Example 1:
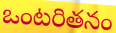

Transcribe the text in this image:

ఒంటరితనం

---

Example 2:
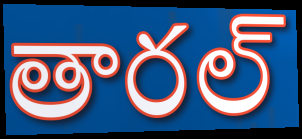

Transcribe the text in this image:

తారల్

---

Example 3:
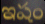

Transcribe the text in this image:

ఇషం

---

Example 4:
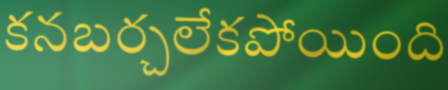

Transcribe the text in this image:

కనబర్చలేకపోయింది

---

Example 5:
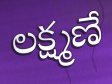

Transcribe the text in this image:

లక్ష్మణే